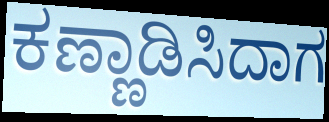
ಕಣ್ಣಾಡಿಸಿದಾಗ